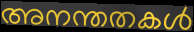
അനന്തതകൾ